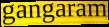
gangaram